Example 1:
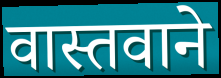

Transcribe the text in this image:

वास्तवाने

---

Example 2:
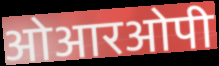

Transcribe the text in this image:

ओआरओपी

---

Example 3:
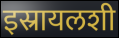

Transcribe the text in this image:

इस्रायलशी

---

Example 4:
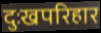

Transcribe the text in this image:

दुःखपरिहार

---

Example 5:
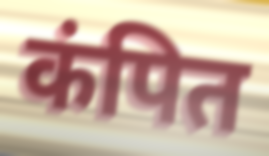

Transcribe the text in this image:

कंपित